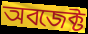
অবজেক্ট